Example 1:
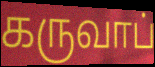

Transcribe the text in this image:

கருவாப்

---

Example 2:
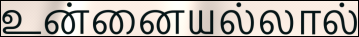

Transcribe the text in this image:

உன்னையல்லால்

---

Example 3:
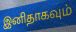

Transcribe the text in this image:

இனிதாகவும்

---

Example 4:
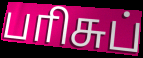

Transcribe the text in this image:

பரிசுப்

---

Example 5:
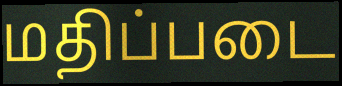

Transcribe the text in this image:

மதிப்படை